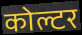
कोल्टर